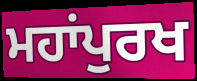
ਮਹਾਂਪੁਰਖ